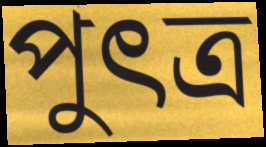
পুৎত্র